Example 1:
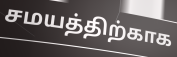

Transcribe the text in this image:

சமயத்திற்காக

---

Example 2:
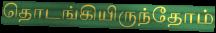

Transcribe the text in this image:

தொடங்கியிருந்தோம்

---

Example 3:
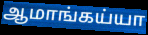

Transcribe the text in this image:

ஆமாங்கய்யா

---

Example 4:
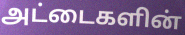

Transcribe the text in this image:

அட்டைகளின்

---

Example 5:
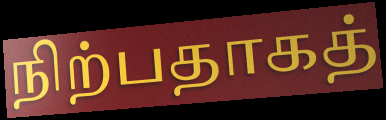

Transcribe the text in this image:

நிற்பதாகத்